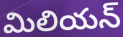
మిలియన్